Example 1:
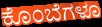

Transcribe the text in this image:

ಕೊಂಬೆಗಳೂ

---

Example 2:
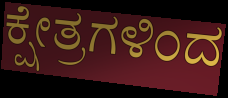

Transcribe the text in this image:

ಕ್ಷೇತ್ರಗಳಿಂದ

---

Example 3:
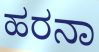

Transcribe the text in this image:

ಹರನಾ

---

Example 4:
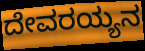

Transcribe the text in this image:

ದೇವರಯ್ಯನ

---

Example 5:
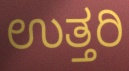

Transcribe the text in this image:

ಉತ್ತರಿ